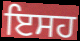
ਇਸਹ